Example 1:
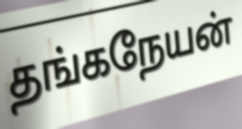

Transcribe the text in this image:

தங்கநேயன்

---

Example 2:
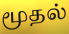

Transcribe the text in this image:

மூதல்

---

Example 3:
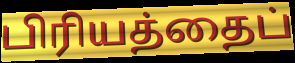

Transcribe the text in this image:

பிரியத்தைப்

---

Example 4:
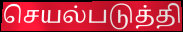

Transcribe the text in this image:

செயல்படுத்தி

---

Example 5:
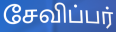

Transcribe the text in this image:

சேவிப்பர்